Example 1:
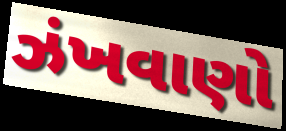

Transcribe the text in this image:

ઝંખવાણો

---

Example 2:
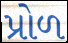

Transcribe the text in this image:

પ્રોળ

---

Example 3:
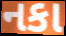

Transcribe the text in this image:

નકા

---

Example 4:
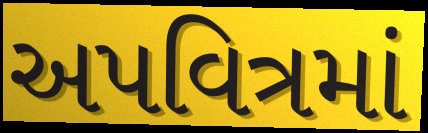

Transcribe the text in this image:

અપવિત્રમાં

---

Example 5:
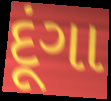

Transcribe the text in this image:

દૂંગા